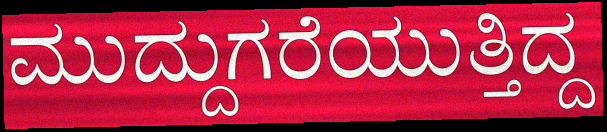
ಮುದ್ದುಗರೆಯುತ್ತಿದ್ದ